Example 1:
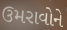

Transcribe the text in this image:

ઉમરાવોને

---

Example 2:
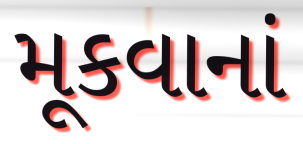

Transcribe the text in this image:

મૂકવાનાં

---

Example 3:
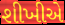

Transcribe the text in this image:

શીખીએ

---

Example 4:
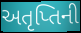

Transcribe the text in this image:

અતૃપ્તિની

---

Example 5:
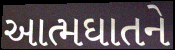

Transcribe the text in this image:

આત્મઘાતને